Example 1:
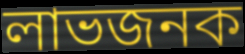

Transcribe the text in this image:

লাভজনক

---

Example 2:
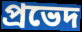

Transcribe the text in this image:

প্ৰভেদ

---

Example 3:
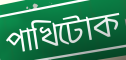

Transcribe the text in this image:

পাখিটোক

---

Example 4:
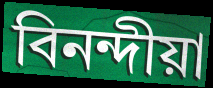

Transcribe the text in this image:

বিনন্দীয়া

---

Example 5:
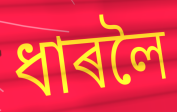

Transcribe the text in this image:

ধাৰলৈ